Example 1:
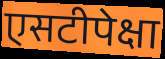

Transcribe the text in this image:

एसटीपेक्षा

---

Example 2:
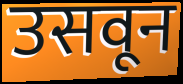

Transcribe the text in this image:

उसवून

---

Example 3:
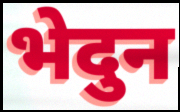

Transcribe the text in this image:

भेदुन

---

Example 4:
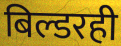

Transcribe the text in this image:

बिल्डरही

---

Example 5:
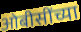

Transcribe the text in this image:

ओबीसींच्या